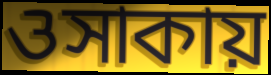
ওসাকায়